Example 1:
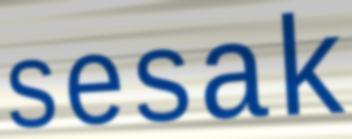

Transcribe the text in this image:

sesak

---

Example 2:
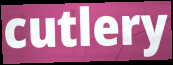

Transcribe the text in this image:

cutlery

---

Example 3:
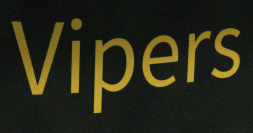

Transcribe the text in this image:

Vipers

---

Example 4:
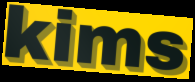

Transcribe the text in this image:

kims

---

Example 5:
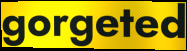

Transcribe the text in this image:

gorgeted